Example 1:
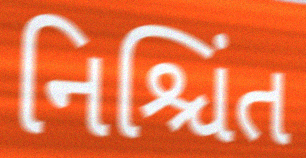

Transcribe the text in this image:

નિશ્ચિંત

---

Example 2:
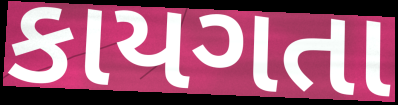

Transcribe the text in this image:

કાયગતા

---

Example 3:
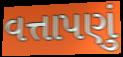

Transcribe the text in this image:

વત્તાપણું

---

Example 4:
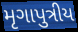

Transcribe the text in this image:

મૃગાપુત્રીય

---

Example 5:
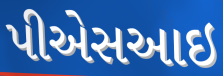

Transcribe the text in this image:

પીએસઆઇ